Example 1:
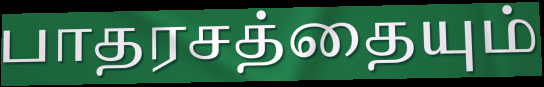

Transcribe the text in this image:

பாதரசத்தையும்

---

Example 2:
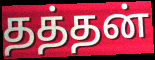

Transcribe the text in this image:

தத்தன்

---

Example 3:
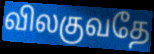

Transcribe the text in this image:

விலகுவதே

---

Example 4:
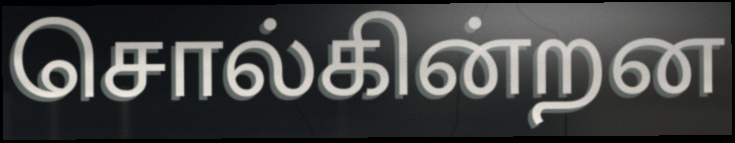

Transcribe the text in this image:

சொல்கின்றன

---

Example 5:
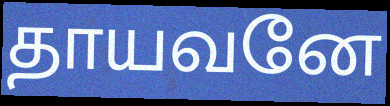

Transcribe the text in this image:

தாயவனே